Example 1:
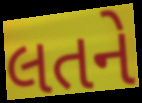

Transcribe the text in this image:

લતને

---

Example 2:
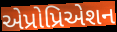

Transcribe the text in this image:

એપ્રોપ્રિએશન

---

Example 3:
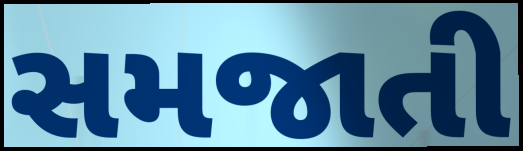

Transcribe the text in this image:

સમજાતી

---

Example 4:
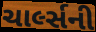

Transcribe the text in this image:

ચાર્લ્સની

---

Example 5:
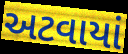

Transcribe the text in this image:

અટવાયાં